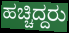
ಹಚ್ಚಿದ್ದರು